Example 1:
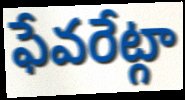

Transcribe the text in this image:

ఫేవరేట్గా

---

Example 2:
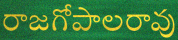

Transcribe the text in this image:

రాజగోపాలరావు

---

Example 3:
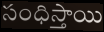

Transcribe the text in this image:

సంధిస్తాయి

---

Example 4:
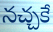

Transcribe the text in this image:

నచ్చకే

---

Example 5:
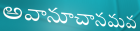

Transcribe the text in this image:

అవానూచానమవ